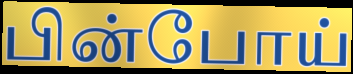
பின்போய்